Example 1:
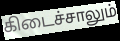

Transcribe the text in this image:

கிடைச்சாலும்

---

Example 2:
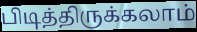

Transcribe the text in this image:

பிடித்திருக்கலாம்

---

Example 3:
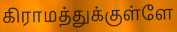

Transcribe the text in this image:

கிராமத்துக்குள்ளே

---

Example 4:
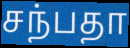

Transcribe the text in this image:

சந்பதா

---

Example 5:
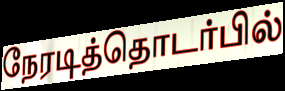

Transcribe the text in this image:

நேரடித்தொடர்பில்